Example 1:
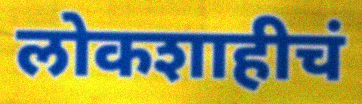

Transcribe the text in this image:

लोकशाहीचं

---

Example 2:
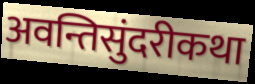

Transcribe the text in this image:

अवन्तिसुंदरीकथा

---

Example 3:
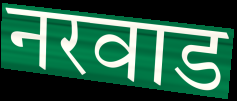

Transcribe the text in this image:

नरवाड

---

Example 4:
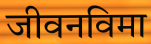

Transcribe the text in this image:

जीवनविमा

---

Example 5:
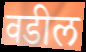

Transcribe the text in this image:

वडील